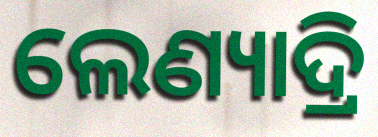
ଲେଣ୍ୟାଦ୍ରି